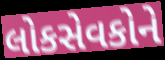
લોકસેવકોને